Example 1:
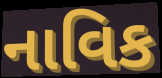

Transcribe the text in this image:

નાવિક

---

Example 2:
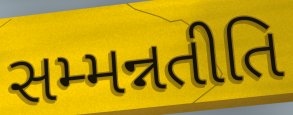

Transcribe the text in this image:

સમ્મન્નતીતિ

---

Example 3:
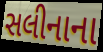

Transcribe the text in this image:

સલીનાના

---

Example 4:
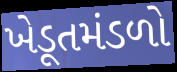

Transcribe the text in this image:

ખેડૂતમંડળો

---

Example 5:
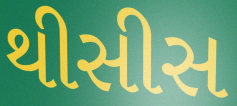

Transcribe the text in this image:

થીસીસ